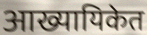
आख्यायिकेत